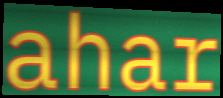
ahar